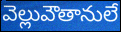
వెల్లువౌతానులే